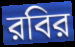
রবির